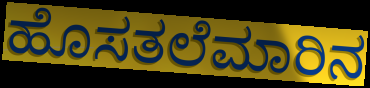
ಹೊಸತಲೆಮಾರಿನ